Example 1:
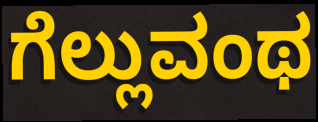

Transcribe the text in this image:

ಗೆಲ್ಲುವಂಥ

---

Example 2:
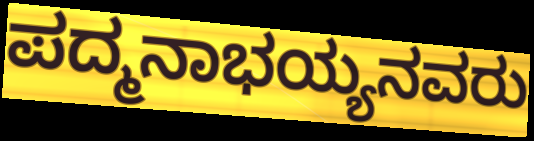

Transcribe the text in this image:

ಪದ್ಮನಾಭಯ್ಯನವರು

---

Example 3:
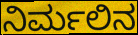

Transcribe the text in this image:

ನಿರ್ಮಲಿನ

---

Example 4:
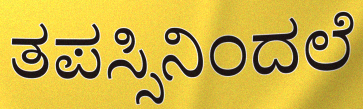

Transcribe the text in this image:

ತಪಸ್ಸಿನಿಂದಲೆ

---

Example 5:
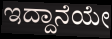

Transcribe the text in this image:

ಇದ್ದಾನೆಯೇ